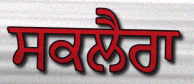
ਸਕਲੈਰਾ